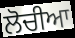
ਲੋਚੀਆ